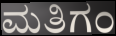
ಮತಿಗಂ